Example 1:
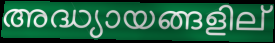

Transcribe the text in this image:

അദ്ധ്യായങ്ങളില്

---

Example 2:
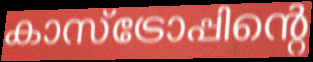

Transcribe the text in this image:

കാസ്ട്രോപ്പിന്റെ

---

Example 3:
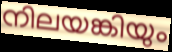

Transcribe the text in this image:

നിലയങ്കിയും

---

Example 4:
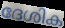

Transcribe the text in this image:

ദേശിക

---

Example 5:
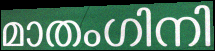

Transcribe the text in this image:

മാതംഗിനി